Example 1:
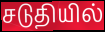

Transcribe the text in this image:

சடுதியில்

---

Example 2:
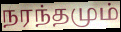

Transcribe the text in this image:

நரந்தமும்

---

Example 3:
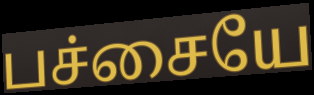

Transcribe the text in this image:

பச்சையே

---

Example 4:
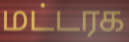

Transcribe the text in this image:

மட்டரக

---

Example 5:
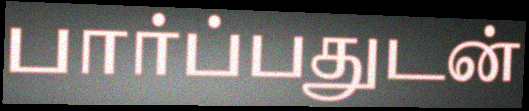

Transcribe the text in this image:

பார்ப்பதுடன்